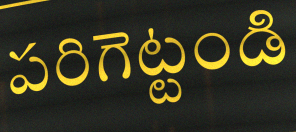
పరిగెట్టండి